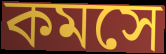
কমসে